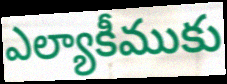
ఎల్యాకీముకు